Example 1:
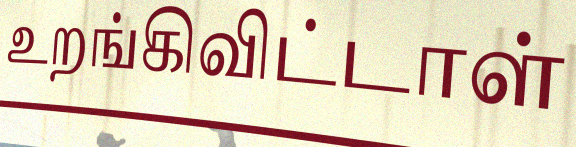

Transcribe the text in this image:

உறங்கிவிட்டாள்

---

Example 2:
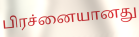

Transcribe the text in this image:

பிரச்னையானது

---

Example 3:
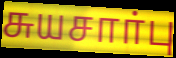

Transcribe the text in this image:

சுயசார்பு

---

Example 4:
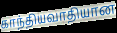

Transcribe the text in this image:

காந்தியவாதியான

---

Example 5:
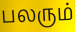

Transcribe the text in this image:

பலரும்